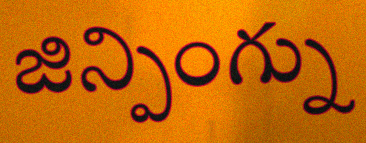
జిన్పింగ్ను